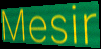
Mesir